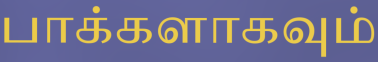
பாக்களாகவும்